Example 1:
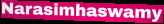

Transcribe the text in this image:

Narasimhaswamy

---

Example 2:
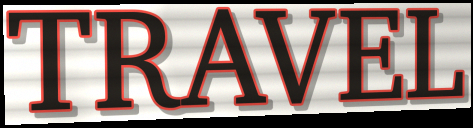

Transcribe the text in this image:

TRAVEL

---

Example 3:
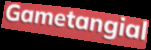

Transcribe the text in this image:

Gametangial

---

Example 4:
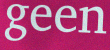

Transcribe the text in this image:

geen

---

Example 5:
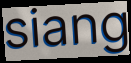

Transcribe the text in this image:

siang